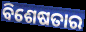
ବିଶେଷତାର